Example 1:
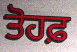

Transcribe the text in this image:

ਤੋਹਫ਼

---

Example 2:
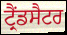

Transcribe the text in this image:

ਟ੍ਰੈਂਡਸੈਟਰ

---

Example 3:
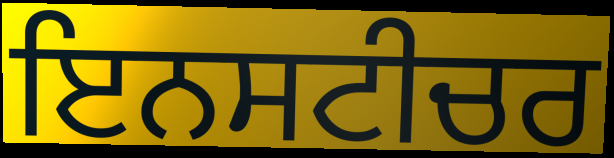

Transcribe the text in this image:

ਇਨਸਟੀਚਰ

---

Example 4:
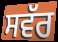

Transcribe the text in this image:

ਸਵੱਰ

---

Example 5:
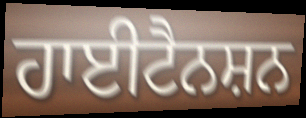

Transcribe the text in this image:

ਹਾਈਟੈਨਸ਼ਨ